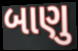
બાણુ